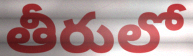
తీరులో